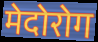
मेदोरोग